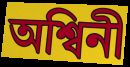
অশ্বিনী